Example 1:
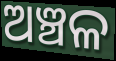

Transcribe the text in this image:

ଅଞ୍ଚଳ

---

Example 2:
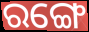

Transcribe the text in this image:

ରଙ୍ଗେ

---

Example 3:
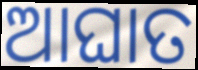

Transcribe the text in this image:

ଆଘାତ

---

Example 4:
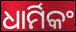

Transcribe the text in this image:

ଧାର୍ମିକଂ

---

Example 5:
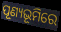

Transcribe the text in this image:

ପୂଣ୍ୟଭୂମିରେ